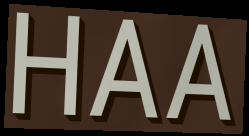
HAA